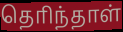
தெரிந்தாள்